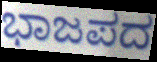
ಭಾಜಪದ